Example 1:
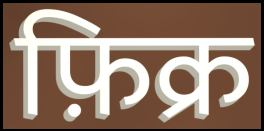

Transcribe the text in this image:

फ़िक्र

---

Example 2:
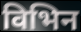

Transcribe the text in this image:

विभिन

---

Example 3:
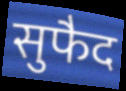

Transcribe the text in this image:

सुफैद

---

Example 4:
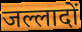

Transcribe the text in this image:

जल्लादों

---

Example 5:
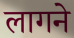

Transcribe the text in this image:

लागने